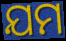
ଯମ